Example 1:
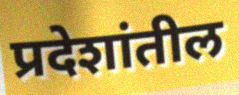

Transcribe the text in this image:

प्रदेशांतील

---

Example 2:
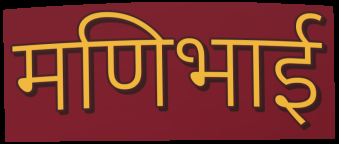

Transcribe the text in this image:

मणिभाई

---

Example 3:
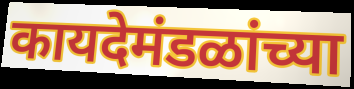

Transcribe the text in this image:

कायदेमंडळांच्या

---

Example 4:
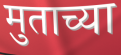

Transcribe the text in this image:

मुताच्या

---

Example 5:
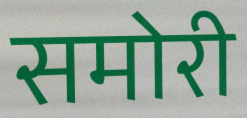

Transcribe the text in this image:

समोरी